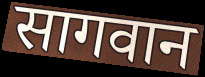
सागवान